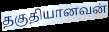
தகுதியானவன்